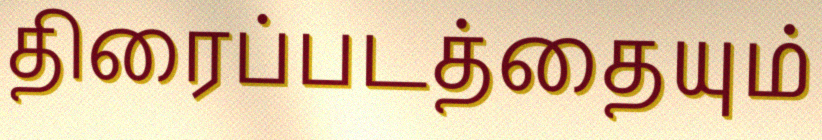
திரைப்படத்தையும்